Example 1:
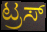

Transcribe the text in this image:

ಟ್ರಸ್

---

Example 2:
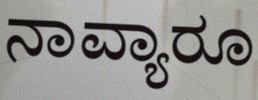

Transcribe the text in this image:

ನಾವ್ಯಾರೂ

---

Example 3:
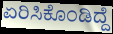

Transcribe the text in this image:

ಏರಿಸಿಕೊಂಡಿದ್ದೆ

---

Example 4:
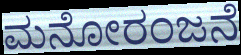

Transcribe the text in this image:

ಮನೋರಂಜನೆ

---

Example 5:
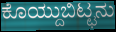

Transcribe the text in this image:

ಕೊಯ್ದುಬಿಟ್ಟನು